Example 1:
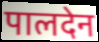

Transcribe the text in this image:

पालदेन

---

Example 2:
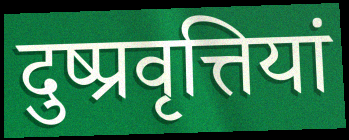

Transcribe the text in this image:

दुष्प्रवृत्तियां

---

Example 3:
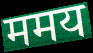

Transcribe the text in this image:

ममय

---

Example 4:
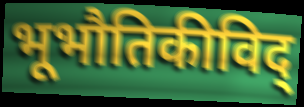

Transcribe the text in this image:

भूभौतिकीविद्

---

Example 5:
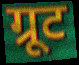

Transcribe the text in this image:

ग्रूट